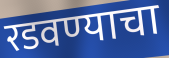
रडवण्याचा